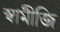
স্বামীজি